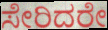
ಸೇರಿದರೇ